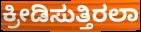
ಕ್ರೀಡಿಸುತ್ತಿರಲಾ